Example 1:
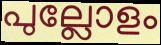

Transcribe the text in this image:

പുല്ലോളം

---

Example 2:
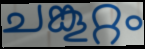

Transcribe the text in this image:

ചങ്കൂറ്റം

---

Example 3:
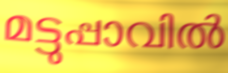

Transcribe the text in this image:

മട്ടുപ്പാവിൽ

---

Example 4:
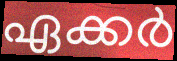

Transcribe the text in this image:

ഏക്കർ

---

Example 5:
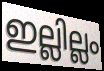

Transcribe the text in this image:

ഇല്ലില്ലം